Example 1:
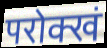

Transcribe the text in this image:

परोक्खं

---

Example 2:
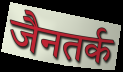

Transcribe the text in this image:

जैनतर्क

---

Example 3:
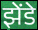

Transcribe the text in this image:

झेंडे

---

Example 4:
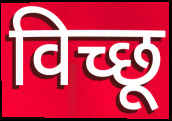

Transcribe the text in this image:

विच्छू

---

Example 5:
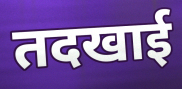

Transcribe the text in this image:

तदखाई